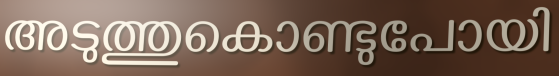
അടുത്തുകൊണ്ടുപോയി